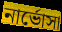
নার্ভোসা